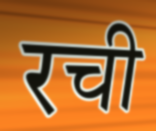
रची